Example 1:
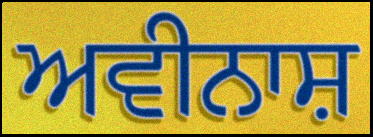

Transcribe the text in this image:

ਅਵੀਨਾਸ਼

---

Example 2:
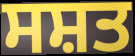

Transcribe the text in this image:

ਸਸ਼ਤ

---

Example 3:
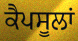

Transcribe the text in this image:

ਕੈਪਸੂਲਾਂ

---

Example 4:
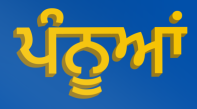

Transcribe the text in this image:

ਪੰਨੂਆਂ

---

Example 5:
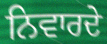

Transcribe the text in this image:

ਨਿਵਾਰਦੇ